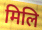
मिलि